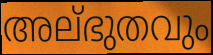
അല്ഭുതവും